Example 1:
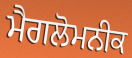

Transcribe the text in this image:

ਮੈਗਲੋਮਨੀਕ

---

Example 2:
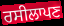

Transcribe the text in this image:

ਰਸੀਲਾਪਣ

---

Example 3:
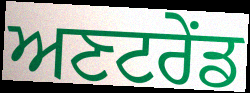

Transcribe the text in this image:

ਅਣਟਰੇਂਡ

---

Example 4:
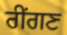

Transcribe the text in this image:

ਰੀਂਗਣ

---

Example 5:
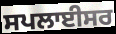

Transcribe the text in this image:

ਸਪਲਾਈਸਰ